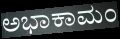
ಅಭಾಕಾಮಂ